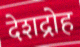
देशद्रोह